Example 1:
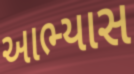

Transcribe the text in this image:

આભ્યાસ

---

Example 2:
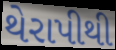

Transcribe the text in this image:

થેરાપીથી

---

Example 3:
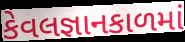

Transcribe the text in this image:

કેવલજ્ઞાનકાળમાં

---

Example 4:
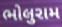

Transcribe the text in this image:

ભોલુરામ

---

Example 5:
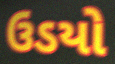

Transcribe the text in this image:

ઉડયો